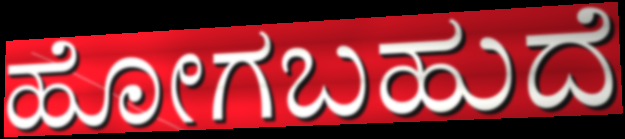
ಹೋಗಬಹುದೆ